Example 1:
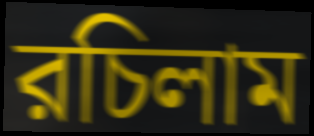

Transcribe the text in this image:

রচিলাম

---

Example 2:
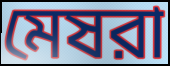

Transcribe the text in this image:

মেষরা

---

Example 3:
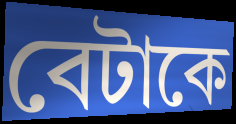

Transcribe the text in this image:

বেটাকে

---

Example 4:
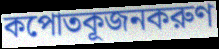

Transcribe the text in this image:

কপোতকূজনকরুণ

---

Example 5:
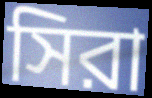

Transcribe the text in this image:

সিরা